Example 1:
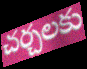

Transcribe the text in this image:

చర్చలకు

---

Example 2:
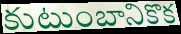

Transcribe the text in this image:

కుటుంబానికొక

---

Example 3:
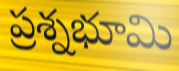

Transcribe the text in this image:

ప్రశ్నభూమి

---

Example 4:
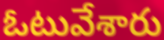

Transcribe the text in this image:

ఓటువేశారు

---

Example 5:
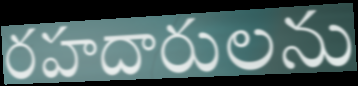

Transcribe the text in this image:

రహదారులను